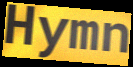
Hymn